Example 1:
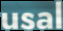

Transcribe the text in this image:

usal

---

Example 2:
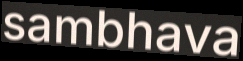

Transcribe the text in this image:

sambhava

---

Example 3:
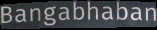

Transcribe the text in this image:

Bangabhaban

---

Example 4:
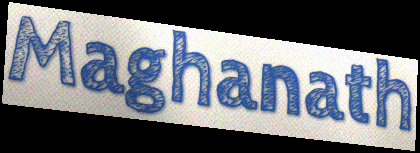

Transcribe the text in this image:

Maghanath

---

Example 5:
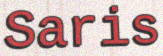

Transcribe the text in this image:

Saris